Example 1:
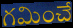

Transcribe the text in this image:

గమించే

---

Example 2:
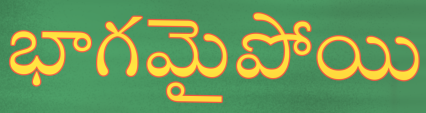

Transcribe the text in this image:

భాగమైపోయి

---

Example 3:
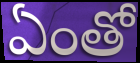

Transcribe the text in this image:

ఏంతో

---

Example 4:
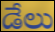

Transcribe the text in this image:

డేలు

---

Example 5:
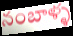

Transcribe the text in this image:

నంబాళ్ళ